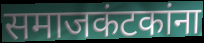
समाजकंटकांना